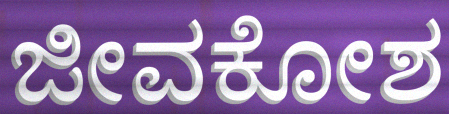
ಜೀವಕೋಶ